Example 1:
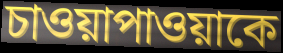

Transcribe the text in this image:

চাওয়াপাওয়াকে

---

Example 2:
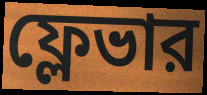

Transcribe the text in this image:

ফ্লেভার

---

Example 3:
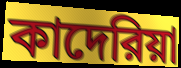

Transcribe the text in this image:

কাদেরিয়া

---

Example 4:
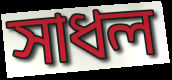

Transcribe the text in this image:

সাধল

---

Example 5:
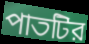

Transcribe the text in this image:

পাতটির